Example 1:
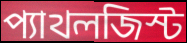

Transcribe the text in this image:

প্যাথলজিস্ট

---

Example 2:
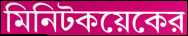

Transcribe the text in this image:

মিনিটকয়েকের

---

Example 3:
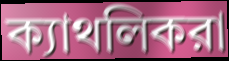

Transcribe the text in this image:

ক্যাথলিকরা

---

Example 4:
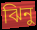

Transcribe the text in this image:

ঝিনু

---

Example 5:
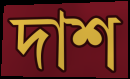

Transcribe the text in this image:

দাশ